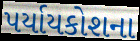
પર્યાયકોશના